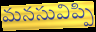
మనసువిప్పి